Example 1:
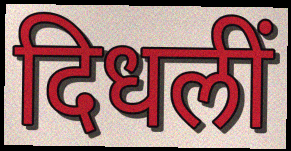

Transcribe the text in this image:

दिधलीं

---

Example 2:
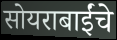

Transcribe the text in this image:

सोयराबाईंचे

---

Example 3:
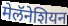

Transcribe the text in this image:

मेलॅनेशियन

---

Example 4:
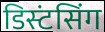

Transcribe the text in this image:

डिस्टंसिंग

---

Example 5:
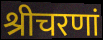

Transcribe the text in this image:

श्रीचरणां